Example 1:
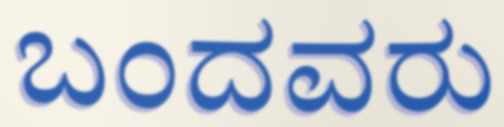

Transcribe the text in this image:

ಬಂದವರು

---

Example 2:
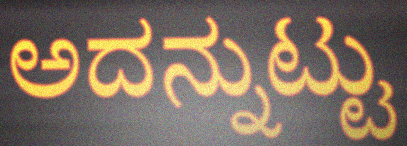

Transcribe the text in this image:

ಅದನ್ನುಟ್ಟು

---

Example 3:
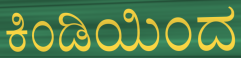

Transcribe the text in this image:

ಕಿಂಡಿಯಿಂದ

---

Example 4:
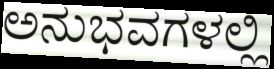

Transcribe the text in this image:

ಅನುಭವಗಳಲ್ಲಿ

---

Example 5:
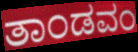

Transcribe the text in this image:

ತಾಂಡವಂ